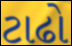
ટાઢો